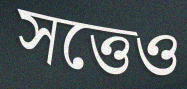
সত্তেও